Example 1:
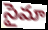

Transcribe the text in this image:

సైమా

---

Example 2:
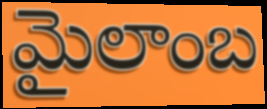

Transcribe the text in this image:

మైలాంబ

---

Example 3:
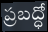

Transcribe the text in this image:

ప్రబద్ధో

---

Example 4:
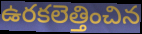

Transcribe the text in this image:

ఉరకలెత్తించిన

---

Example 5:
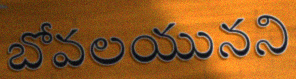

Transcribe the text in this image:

బోవలయునని